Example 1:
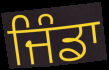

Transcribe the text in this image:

ਜਿੰਡਾ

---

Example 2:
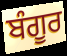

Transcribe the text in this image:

ਬੰਗੂਰ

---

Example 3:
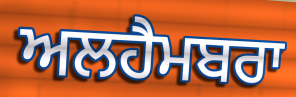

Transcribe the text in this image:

ਅਲਹੈਮਬਰਾ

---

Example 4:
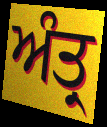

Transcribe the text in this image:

ਅੰਤ੍ਰ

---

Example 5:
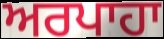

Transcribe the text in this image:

ਅਰਪਾਹਾ